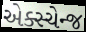
એક્સ્ચેન્જ